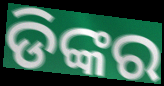
ଡିଙ୍କର